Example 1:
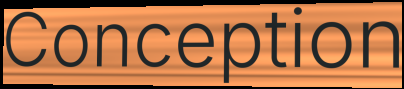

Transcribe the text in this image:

Conception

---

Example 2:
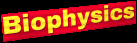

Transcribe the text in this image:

Biophysics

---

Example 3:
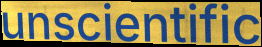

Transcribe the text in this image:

unscientific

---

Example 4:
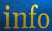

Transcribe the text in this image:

info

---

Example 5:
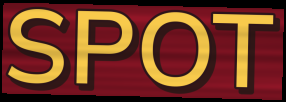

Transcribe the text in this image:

SPOT